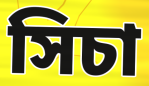
সিচা